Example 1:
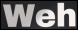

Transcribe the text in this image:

Weh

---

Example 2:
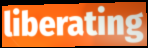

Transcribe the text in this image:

liberating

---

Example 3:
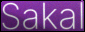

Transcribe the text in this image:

Sakal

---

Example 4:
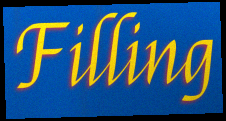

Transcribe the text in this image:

Filling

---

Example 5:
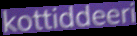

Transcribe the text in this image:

kottiddeeri